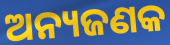
ଅନ୍ୟଜଣକ